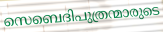
സെബെദിപുത്രന്മാരുടെ